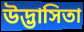
উদ্ভাসিতা